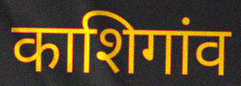
काशिगांव